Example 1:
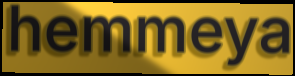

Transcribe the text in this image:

hemmeya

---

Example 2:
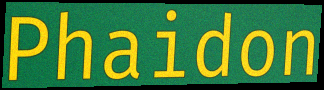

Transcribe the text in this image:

Phaidon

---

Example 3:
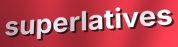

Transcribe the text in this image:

superlatives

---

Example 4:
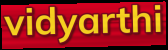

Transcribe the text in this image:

vidyarthi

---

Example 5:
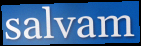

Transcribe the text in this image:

salvam